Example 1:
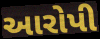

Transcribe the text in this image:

આરોપી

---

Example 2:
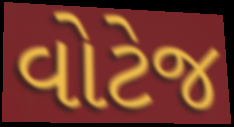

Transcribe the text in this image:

વોટેજ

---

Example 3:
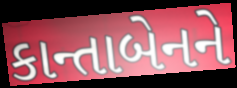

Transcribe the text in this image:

કાન્તાબેનને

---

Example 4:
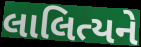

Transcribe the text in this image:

લાલિત્યને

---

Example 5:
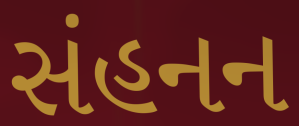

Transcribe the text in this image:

સંહનન